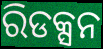
ରିଡକ୍ସନ